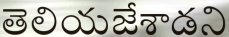
తెలియజేశాడని